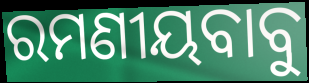
ରମଣୀୟବାବୁ